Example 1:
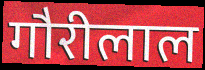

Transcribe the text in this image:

गौरीलाल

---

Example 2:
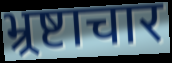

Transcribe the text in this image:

भ्र्रष्टाचार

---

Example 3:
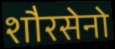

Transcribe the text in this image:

शौरसेनो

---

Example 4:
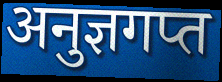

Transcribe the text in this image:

अनुज्ञगप्त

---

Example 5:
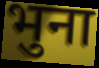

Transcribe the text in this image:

भुना